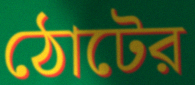
ঠোটের